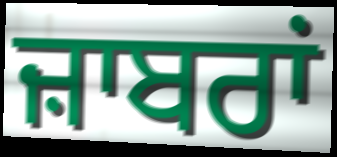
ਜ਼ਾਬਰਾਂ